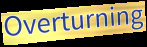
Overturning